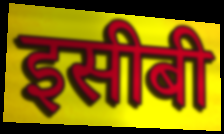
इसीबी